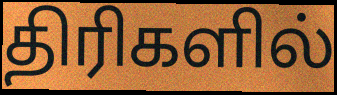
திரிகளில்